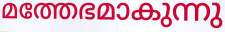
മത്തേഭമാകുന്നു